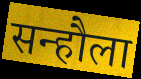
सन्हौला